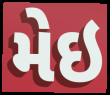
મેઇ